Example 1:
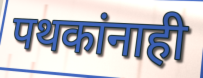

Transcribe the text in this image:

पथकांनाही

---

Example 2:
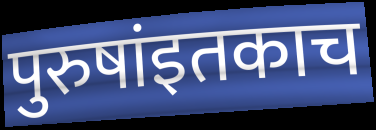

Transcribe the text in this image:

पुरुषांइतकाच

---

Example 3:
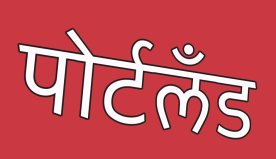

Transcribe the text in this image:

पोर्टलॅंड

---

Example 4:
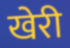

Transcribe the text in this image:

खेरी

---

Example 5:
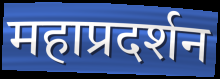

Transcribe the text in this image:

महाप्रदर्शन